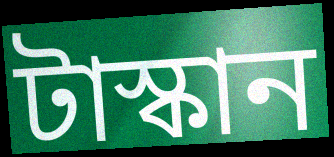
টাস্কান